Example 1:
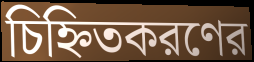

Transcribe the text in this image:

চিহ্নিতকরণের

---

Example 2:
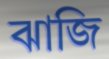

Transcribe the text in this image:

ঝাজি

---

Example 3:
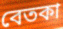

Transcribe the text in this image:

বেতকা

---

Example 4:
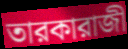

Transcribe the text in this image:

তারকারাজী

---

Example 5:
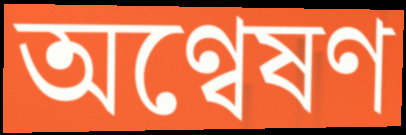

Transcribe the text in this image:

অণ্বেষণ